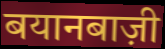
बयानबाज़ी